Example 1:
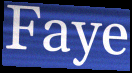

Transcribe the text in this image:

Faye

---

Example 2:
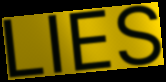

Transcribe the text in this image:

LIES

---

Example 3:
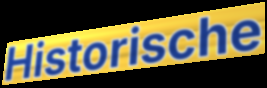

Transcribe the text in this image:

Historische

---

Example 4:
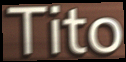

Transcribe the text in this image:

Tito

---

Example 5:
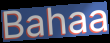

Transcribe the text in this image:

Bahaa